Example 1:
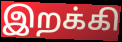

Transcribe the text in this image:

இறக்கி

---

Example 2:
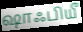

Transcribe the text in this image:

ஷாஃபியீ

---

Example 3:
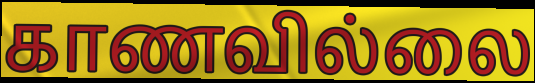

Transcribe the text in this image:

காணவில்லை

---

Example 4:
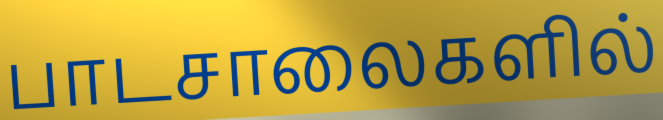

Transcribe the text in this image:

பாடசாலைகளில்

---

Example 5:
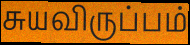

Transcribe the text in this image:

சுயவிருப்பம்